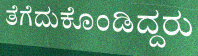
ತೆಗೆದುಕೊಂಡಿದ್ದರು